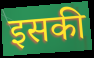
इसकी